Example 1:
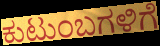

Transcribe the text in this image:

ಕುಟುಂಬಗಳಿಗೆ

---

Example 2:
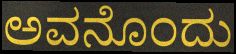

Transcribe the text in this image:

ಅವನೊಂದು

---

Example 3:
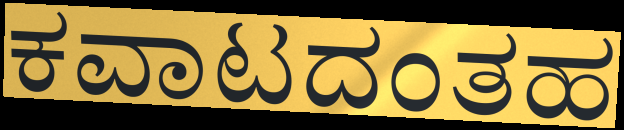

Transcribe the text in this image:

ಕವಾಟದಂತಹ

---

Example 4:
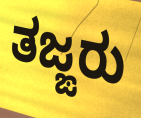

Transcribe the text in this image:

ತಜ್ಙರು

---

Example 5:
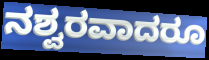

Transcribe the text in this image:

ನಶ್ವರವಾದರೂ